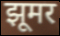
झूमर